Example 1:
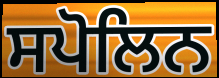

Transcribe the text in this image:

ਸਪੋਲਿਨ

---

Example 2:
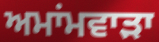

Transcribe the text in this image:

ਅਮਾਂਮਵਾੜਾ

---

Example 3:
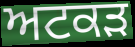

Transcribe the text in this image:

ਅਟਕੜ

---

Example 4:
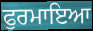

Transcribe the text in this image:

ਫੁਰਮਾਇਆ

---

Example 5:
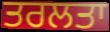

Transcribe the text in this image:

ਤਰਲਤਾ